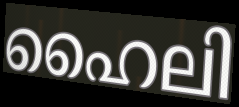
ഹൈലി